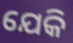
ଯେକି